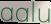
aalu